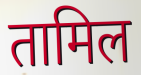
तामिल